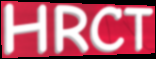
HRCT